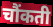
चौंकती